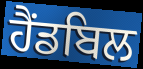
ਹੈਂਡਬਿਲ